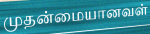
முதன்மையானவள்